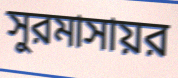
সুরমাসায়র